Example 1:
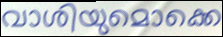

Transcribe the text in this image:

വാശിയുമൊക്കെ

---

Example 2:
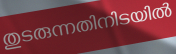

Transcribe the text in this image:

തുടരുന്നതിനിടയിൽ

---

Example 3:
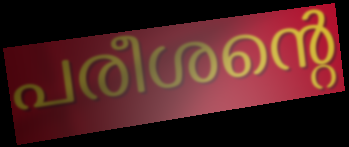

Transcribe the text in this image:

പരീശന്റെ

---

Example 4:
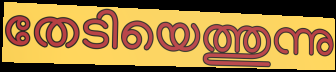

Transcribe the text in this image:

തേടിയെത്തുന്നു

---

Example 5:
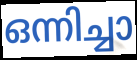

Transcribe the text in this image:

ഒന്നിച്ചാ